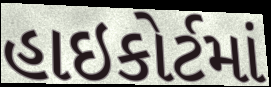
હાઇકોર્ટમાં